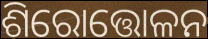
ଶିରୋତ୍ତୋଳନ